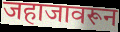
जहाजावरून